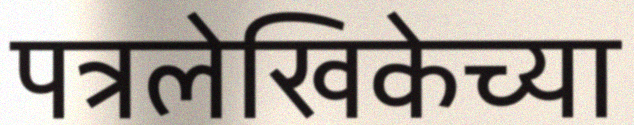
पत्रलेखिकेच्या